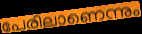
പേരിലാണെന്നും